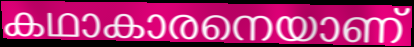
കഥാകാരനെയാണ്